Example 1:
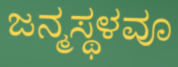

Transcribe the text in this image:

ಜನ್ಮಸ್ಥಳವೂ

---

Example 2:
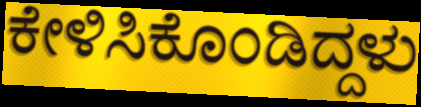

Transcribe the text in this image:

ಕೇಳಿಸಿಕೊಂಡಿದ್ದಳು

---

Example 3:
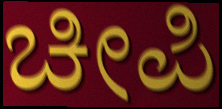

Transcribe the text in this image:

ಚೀಪಿ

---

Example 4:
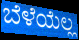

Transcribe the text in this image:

ಬೆಳೆಯೆಲ್ಲ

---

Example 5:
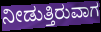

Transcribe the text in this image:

ನೀಡುತ್ತಿರುವಾಗ